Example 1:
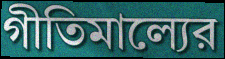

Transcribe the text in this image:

গীতিমাল্যের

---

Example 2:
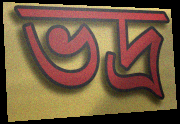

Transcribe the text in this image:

ভদ্র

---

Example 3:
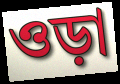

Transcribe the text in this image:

ওড়া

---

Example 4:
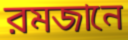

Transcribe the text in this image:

রমজানে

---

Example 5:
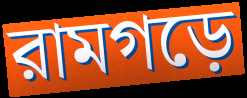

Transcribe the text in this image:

রামগড়ে